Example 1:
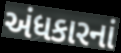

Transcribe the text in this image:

અંધકારનાં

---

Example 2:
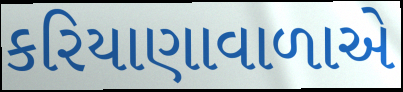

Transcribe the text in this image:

કરિયાણાવાળાએ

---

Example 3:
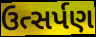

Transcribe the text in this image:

ઉત્સર્પણ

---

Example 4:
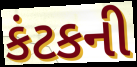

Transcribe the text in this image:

કંટકની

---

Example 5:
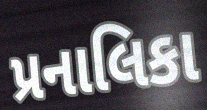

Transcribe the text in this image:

પ્રનાલિકા